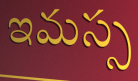
ఇమస్స